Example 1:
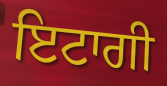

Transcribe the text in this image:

ਇਟਾਗੀ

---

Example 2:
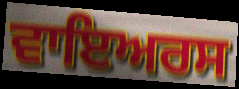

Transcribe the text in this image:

ਵਾਇਅਰਸ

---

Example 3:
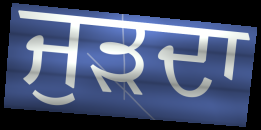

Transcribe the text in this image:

ਜੁੜਦਾ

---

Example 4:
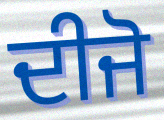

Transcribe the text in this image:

ਦੀਜੋ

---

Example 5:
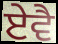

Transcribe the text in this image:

ਏਵੈ